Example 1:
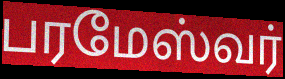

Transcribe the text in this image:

பரமேஸ்வர்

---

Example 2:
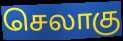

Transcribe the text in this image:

செலாகு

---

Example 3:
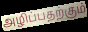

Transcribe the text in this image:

அழிப்பதற்கும்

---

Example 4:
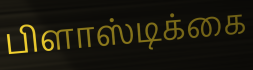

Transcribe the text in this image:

பிளாஸ்டிக்கை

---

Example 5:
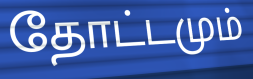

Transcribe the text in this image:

தோட்டமும்